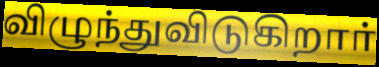
விழுந்துவிடுகிறார்